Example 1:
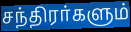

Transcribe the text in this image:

சந்திரர்களும்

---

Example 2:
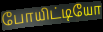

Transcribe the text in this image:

போயிட்டியோ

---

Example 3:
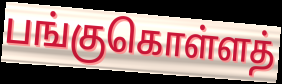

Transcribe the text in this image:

பங்குகொள்ளத்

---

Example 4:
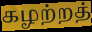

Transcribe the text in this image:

கழற்றத்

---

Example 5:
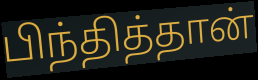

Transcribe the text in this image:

பிந்தித்தான்